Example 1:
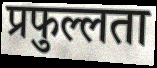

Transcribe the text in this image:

प्रफुल्लता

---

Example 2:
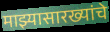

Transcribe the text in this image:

माझ्यासारख्यांचे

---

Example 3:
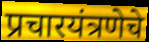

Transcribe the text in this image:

प्रचारयंत्रणेचे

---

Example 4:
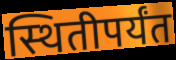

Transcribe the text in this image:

स्थितीपर्यंत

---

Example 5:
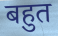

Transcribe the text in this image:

बहुत